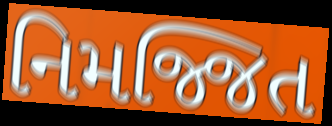
નિમજ્જિત